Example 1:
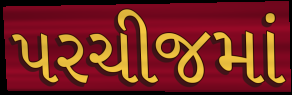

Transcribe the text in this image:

પરચીજમાં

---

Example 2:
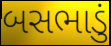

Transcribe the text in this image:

બસભાડું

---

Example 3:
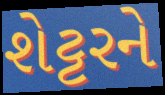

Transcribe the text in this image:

શેટ્ટરને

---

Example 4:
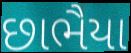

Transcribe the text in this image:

છાભૈયા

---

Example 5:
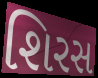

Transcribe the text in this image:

શિરસ